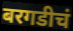
बरगडीचं